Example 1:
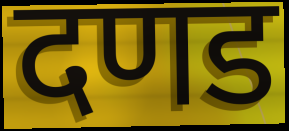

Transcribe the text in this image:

दणड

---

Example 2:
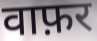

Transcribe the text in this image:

वाफ़र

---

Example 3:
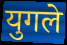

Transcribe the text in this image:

युगले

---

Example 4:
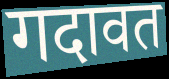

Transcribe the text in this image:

गदावत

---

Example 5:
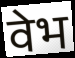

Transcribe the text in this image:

वेभ